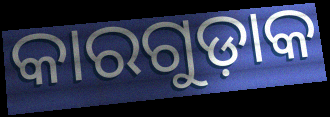
କାରଗୁଡ଼ାକ